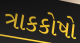
ત્રાકકોષો